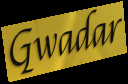
Gwadar